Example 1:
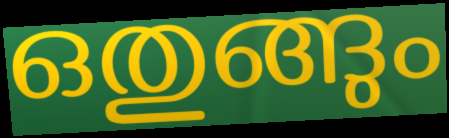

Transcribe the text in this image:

ഒതുങ്ങും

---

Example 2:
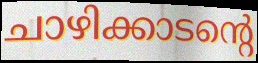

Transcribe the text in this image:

ചാഴിക്കാടന്റെ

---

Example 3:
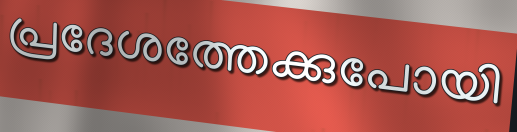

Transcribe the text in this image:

പ്രദേശത്തേക്കുപോയി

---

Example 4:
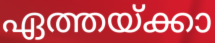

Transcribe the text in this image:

ഏത്തയ്ക്കാ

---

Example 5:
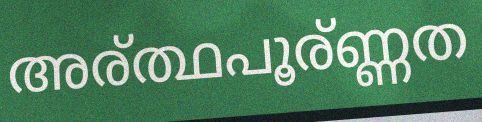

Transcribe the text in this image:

അര്ത്ഥപൂര്ണ്ണത